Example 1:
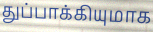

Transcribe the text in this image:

துப்பாக்கியுமாக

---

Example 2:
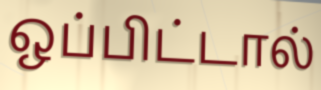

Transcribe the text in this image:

ஒப்பிட்டால்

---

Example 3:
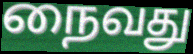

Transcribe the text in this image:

நைவது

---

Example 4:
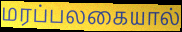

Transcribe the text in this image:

மரப்பலகையால்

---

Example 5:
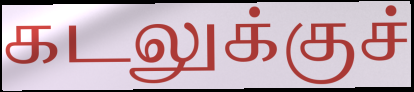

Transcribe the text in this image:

கடலுக்குச்